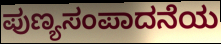
ಪುಣ್ಯಸಂಪಾದನೆಯ